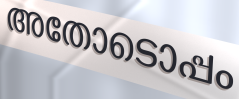
അതോടൊപ്പം